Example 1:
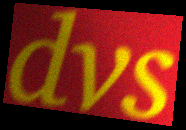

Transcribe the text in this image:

dvs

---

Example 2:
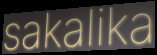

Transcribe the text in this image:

sakalika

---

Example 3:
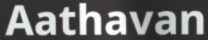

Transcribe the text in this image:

Aathavan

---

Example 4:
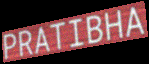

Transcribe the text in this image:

PRATIBHA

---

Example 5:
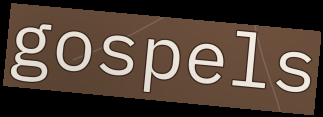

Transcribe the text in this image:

gospels